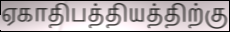
ஏகாதிபத்தியத்திற்கு